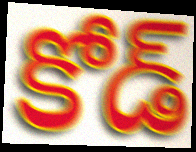
కోడ్